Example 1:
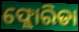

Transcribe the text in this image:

ଫ୍ଲୋରିଡା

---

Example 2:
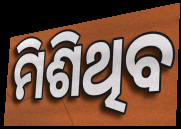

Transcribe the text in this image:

ମିଶିଥିବ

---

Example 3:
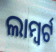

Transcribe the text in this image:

ଲାମ୍ବର୍ଟ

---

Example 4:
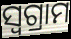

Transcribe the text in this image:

ସ୍ୱଗ୍ରାମ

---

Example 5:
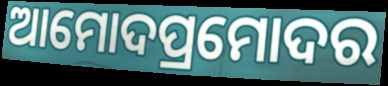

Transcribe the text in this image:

ଆମୋଦପ୍ରମୋଦର